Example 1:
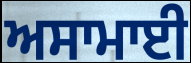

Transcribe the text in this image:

ਅਸਾਮਾਈ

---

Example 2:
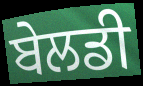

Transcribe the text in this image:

ਬੇਲਡੀ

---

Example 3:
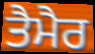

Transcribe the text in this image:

ਤੈਮੈਰ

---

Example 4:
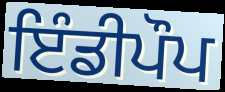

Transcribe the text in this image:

ਇੰਡੀਪੌਪ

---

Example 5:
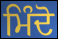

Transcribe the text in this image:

ਮਿੰਦੋ